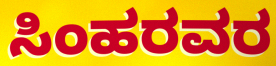
ಸಿಂಹರವರ